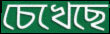
চেখেছে